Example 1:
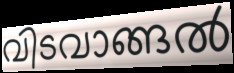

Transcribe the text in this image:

വിടവാങ്ങൽ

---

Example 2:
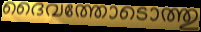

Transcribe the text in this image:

ദൈവത്തോടൊത്തു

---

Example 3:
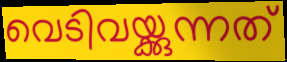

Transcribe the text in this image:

വെടിവയ്ക്കുന്നത്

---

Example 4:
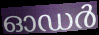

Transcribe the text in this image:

ഓഡർ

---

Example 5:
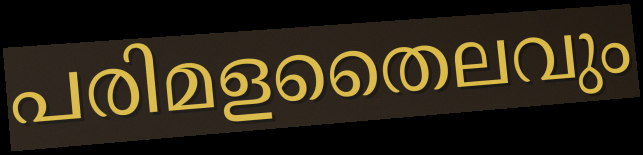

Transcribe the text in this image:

പരിമളതൈലവും